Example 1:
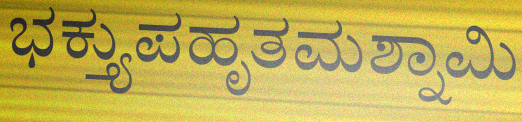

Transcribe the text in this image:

ಭಕ್ತ್ಯುಪಹೃತಮಶ್ನಾಮಿ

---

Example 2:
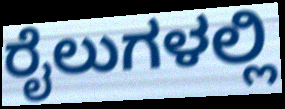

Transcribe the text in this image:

ರೈಲುಗಳಲ್ಲಿ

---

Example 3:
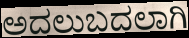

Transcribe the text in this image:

ಅದಲುಬದಲಾಗಿ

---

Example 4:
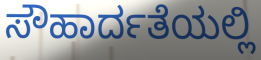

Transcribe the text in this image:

ಸೌಹಾರ್ದತೆಯಲ್ಲಿ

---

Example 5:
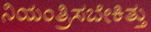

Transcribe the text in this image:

ನಿಯಂತ್ರಿಸಬೇಕಿತ್ತು